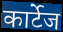
कार्टेज